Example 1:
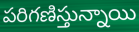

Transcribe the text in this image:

పరిగణిస్తున్నాయి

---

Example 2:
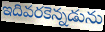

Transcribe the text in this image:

ఇదివరకెన్నడును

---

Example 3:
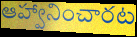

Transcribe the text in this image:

ఆహ్వానించారట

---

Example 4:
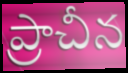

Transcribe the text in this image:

ప్రాచీన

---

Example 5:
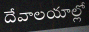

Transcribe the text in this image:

దేవాలయాల్లో